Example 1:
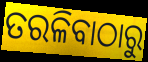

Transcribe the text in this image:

ତରଳିବାଠାରୁ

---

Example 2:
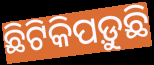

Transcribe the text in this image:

ଛିଟିକିପଡ଼ୁଛି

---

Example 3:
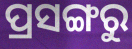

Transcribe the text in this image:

ପ୍ରସଙ୍ଗରୁ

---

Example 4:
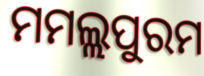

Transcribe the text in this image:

ମମଲ୍ଲପୁରମ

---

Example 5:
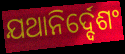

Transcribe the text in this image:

ଯଥାନିର୍ଦ୍ଦେଶଂ